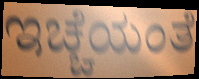
ಇಚ್ಚೆಯಂತೆ